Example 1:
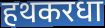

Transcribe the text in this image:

हथकरधा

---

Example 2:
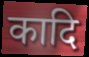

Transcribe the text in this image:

कादि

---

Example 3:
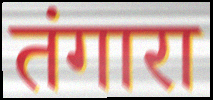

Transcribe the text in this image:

तंगारा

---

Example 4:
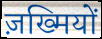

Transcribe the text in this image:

ज़ख्मियों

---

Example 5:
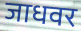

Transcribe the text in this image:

जाधवर